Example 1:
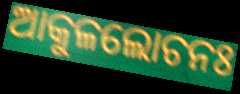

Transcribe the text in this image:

ଆକୁଳଲୋଚନଃ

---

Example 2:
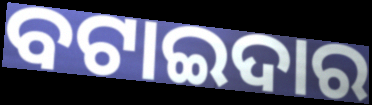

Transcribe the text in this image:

ବଟାଇଦାର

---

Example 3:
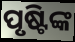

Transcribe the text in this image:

ପୃଷ୍ଟିଙ୍କ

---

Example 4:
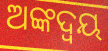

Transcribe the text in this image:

ଅଙ୍କଦ୍ବୟ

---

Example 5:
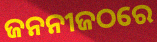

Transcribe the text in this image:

ଜନନୀଜଠରେ